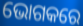
ଭୋଗକରେ